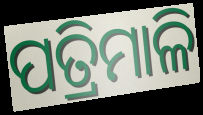
ପତ୍ରିମାଳି